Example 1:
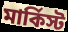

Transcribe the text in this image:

মার্কিস্ট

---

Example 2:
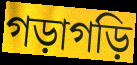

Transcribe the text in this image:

গড়াগড়ি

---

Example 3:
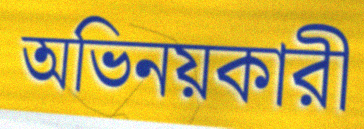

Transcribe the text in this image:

অভিনয়কারী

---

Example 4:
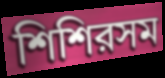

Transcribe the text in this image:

শিশিরসম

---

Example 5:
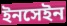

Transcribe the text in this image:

ইনসেইন